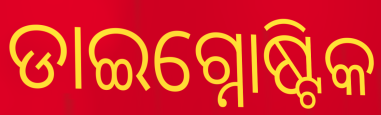
ଡାଇଗ୍ନୋଷ୍ଟିକ